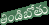
తిండిబోతు